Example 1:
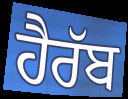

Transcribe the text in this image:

ਹੈਰੱਬ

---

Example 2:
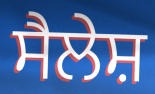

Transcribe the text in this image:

ਸੈਲੇਸ਼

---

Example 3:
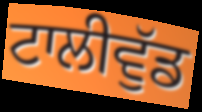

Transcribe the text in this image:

ਟਾਲੀਵੁੱਡ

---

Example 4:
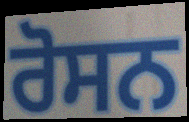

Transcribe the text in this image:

ਰੋਸਨ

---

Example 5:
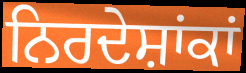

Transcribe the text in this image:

ਨਿਰਦੇਸ਼ਾਂਕਾਂ